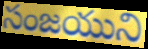
సంజయుని